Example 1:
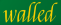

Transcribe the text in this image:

walled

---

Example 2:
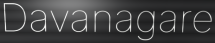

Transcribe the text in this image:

Davanagare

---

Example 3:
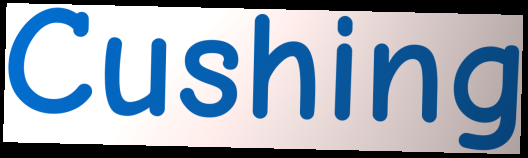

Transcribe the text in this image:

Cushing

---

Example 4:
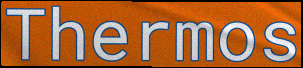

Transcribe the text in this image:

Thermos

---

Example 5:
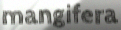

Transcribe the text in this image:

mangifera